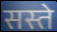
सस्ते